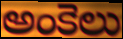
అంకెలు